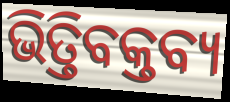
ଭିତ୍ତିବକ୍ତବ୍ୟ